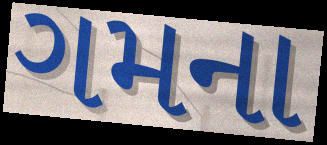
ગમના